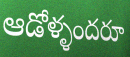
ఆడోళ్ళందరూ